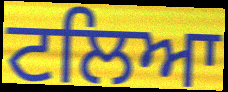
ਟਲਿਆ